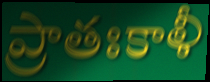
ప్రాతఃకాళీ